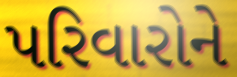
પરિવારોને